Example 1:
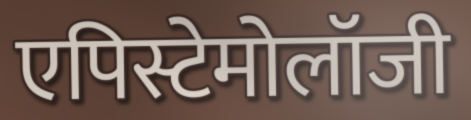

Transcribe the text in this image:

एपिस्टेमोलॉजी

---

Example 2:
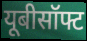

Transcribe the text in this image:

यूबीसॉफ्ट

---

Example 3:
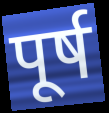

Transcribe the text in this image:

पूर्ष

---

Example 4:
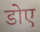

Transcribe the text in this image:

डोए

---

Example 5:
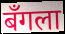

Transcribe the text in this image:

बँगला